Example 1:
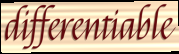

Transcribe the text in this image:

differentiable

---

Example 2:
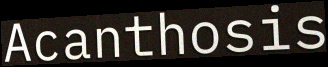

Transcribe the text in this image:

Acanthosis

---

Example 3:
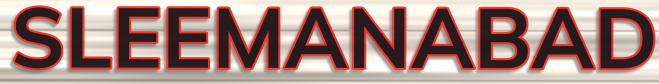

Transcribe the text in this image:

SLEEMANABAD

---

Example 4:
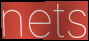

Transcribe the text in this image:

nets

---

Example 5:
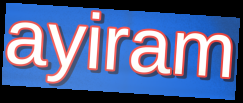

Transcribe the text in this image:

ayiram